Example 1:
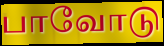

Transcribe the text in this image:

பாவோடு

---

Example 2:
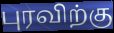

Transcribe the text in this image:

புரவிற்கு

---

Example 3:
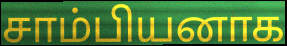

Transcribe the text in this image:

சாம்பியனாக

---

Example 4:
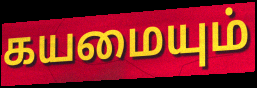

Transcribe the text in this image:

கயமையும்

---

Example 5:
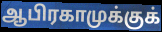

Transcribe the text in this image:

ஆபிரகாமுக்குக்